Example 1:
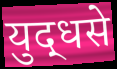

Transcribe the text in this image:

युद्धसे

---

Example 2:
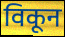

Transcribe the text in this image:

विकून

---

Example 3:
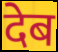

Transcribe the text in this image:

देब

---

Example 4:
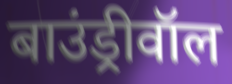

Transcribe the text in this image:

बाउंड्रीवॉल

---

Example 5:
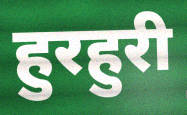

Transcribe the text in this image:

हुरहुरी